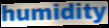
humidity